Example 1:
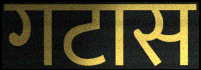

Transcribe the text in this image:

गटास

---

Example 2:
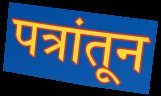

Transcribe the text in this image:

पत्रांतून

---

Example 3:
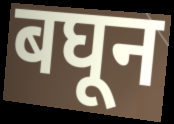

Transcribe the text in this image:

बघून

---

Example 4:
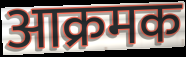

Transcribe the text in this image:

आक्रमक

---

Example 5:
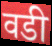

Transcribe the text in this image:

वडी